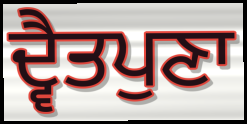
ਦ੍ਵੈਤਪੁਣਾ